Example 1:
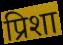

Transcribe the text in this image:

प्रिशा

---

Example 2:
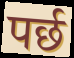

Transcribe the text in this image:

पर्छ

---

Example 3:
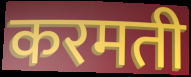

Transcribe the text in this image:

करमती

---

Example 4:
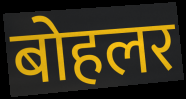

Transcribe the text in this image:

बोहलर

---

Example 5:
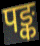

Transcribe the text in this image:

पङ्क